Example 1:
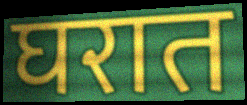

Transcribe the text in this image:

घरात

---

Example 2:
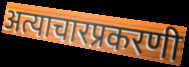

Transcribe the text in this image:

अत्याचारप्रकरणी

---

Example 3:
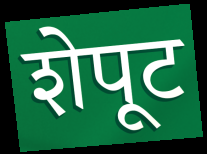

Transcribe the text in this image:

शेपूट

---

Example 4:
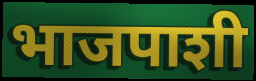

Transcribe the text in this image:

भाजपाशी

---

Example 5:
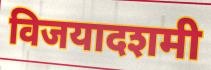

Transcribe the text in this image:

विजयादशमी